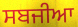
ਸਬਜੀਆ